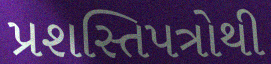
પ્રશસ્તિપત્રોથી